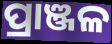
ପ୍ରାଞ୍ଜଳ